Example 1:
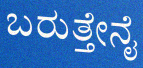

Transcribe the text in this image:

ಬರುತ್ತೇನೈ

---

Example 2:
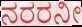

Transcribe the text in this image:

ನರರನೀ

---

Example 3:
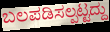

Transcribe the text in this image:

ಬಲಪಡಿಸಲ್ಪಟ್ಟದ್ದು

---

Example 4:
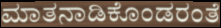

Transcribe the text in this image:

ಮಾತನಾಡಿಕೊಂಡರಂತೆ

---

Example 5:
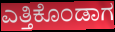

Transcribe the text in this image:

ಎತ್ತಿಕೊಂಡಾಗ